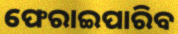
ଫେରାଇପାରିବ